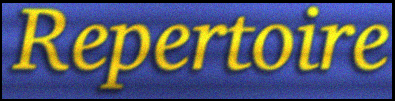
Repertoire